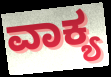
ವಾಕ್ಯ